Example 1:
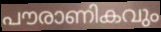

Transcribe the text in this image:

പൗരാണികവും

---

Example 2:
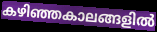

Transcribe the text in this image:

കഴിഞ്ഞകാലങ്ങളിൽ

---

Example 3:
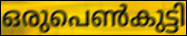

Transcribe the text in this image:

ഒരുപെൺകുട്ടി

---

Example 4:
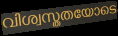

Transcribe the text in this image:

വിശ്വസ്തതയോടെ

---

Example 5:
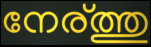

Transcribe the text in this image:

നേര്ത്തു